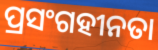
ପ୍ରସଂଗହୀନତା